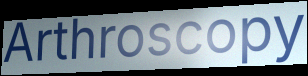
Arthroscopy